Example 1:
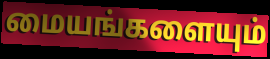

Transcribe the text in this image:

மையங்களையும்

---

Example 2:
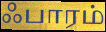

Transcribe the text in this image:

ஃபாரம்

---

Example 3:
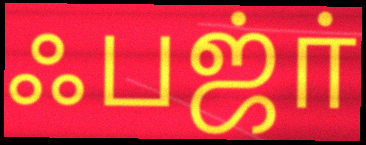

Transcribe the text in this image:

ஃபஜ்ர்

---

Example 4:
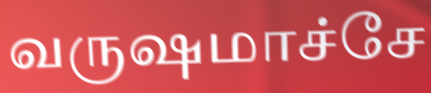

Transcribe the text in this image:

வருஷமாச்சே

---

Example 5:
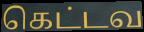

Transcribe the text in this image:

கெட்டவ